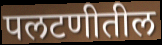
पलटणीतील